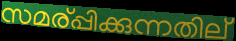
സമര്പ്പിക്കുന്നതില്